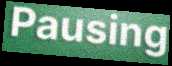
Pausing